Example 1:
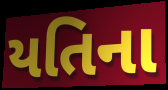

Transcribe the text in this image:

યતિના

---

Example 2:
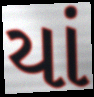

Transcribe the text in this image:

યાં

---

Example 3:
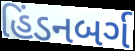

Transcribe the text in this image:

હિંડનબર્ગ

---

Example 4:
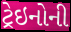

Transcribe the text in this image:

ટ્રેઇનોની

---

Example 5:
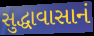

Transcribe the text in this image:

સુદ્ધાવાસાનં